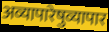
अव्यापारेषुव्यापार